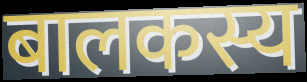
बालकस्य